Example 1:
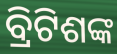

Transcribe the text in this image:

ବ୍ରିଟିଶଙ୍କ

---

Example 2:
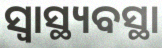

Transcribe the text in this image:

ସ୍ଵାସ୍ଥ୍ୟବସ୍ଥା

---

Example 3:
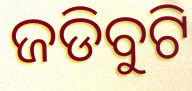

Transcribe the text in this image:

ଜଡିବୁଟି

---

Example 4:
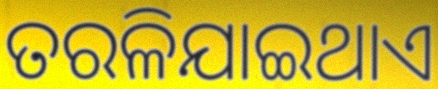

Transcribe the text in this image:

ତରଳିଯାଇଥାଏ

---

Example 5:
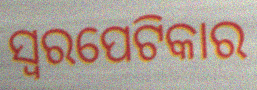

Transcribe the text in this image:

ସ୍ଵରପେଟିକାର